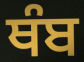
ਥੰਬ